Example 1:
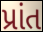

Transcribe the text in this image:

પ્રાંત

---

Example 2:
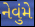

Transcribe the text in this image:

નેવુંમે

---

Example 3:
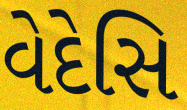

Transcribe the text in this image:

વેદેસિ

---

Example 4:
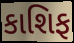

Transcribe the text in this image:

કાશિફ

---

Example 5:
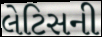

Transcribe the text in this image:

લેટિસની